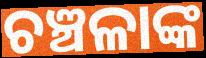
ଚଞ୍ଚଳାଙ୍କ